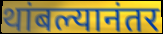
थांबल्यानंतर